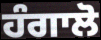
ਹੰਗਾਲੋ